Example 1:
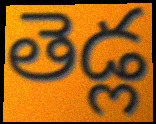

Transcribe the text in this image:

తెడ్ల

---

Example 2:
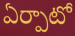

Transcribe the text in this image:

ఏర్పాటో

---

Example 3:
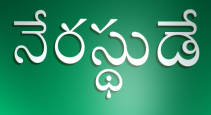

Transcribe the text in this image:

నేరస్థుడే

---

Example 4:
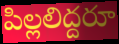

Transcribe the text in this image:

పిల్లలిద్దరూ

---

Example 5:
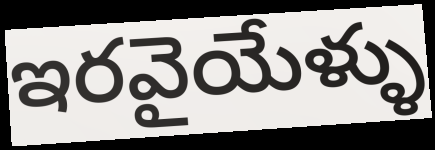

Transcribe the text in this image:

ఇరవైయేళ్ళు